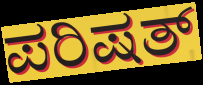
ಪರಿಷತ್